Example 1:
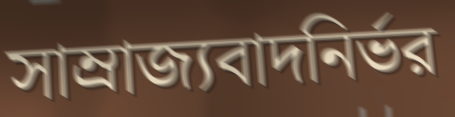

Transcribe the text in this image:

সাম্রাজ্যবাদনির্ভর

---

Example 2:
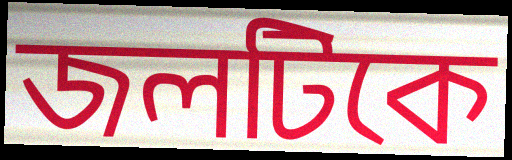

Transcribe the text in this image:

জলটিকে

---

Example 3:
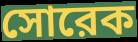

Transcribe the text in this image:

সোরেক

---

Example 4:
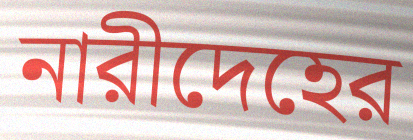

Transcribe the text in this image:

নারীদেহের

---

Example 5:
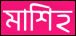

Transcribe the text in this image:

মাশিহ